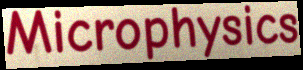
Microphysics